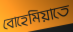
বোহেমিয়াতে